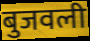
बुजवली